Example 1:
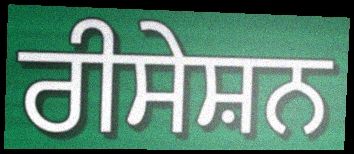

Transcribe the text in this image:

ਰੀਸੇਸ਼ਨ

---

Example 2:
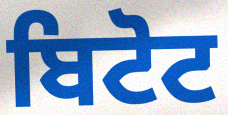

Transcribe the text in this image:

ਬਿਟੋਟ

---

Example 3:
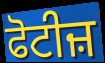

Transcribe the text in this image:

ਫੋਟੀਜ਼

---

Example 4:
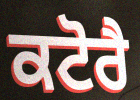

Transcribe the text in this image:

ਕਟੋਰੈ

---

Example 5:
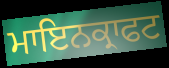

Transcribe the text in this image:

ਮਾਇਨਕ੍ਰਾਫਟ